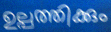
ഉല്പത്തിക്കും